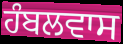
ਹੰਬਲਵਾਸ